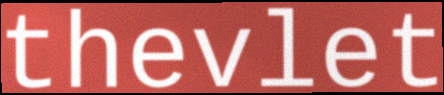
thevlet